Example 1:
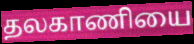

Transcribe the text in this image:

தலகாணியை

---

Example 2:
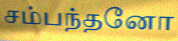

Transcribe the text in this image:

சம்பந்தனோ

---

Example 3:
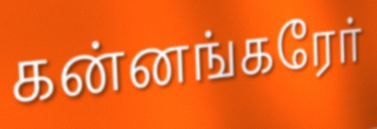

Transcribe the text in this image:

கன்னங்கரேர்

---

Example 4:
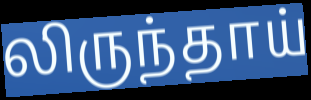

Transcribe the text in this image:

லிருந்தாய்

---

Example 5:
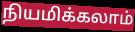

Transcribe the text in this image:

நியமிக்கலாம்